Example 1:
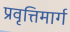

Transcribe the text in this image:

प्रवृत्तिमार्ग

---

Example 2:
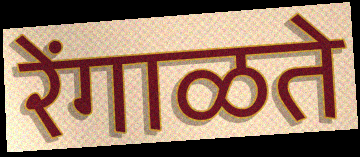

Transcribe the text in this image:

रेंगाळते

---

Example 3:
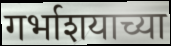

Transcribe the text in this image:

गर्भाशयाच्या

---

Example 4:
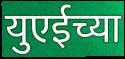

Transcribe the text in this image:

युएईच्या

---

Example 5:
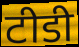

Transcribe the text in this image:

टीडी